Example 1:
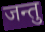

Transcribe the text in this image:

जन्तु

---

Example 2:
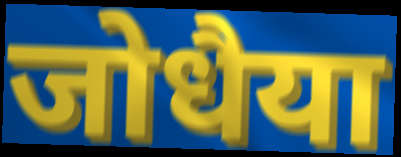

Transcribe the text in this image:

जोधैया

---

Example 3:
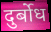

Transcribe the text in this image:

दुर्बोध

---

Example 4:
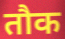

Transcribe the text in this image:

तौक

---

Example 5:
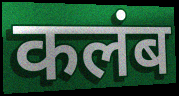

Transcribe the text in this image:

कलंब